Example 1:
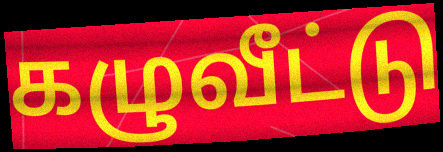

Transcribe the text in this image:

கழுவீட்டு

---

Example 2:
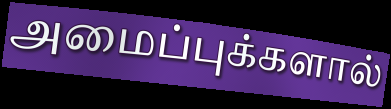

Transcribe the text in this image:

அமைப்புக்களால்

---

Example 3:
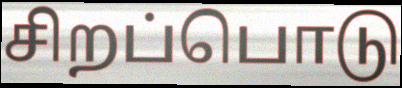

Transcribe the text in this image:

சிறப்பொடு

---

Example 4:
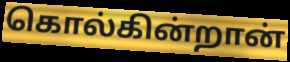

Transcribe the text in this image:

கொல்கின்றான்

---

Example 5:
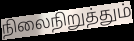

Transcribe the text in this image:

நிலைநிறுத்தும்